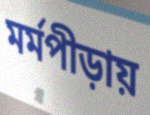
মর্মপীড়ায়